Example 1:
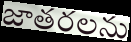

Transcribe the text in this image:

జాతరలను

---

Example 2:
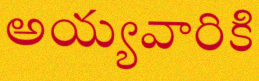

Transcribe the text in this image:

అయ్యవారికి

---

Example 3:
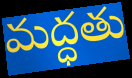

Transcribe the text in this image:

మద్ధతు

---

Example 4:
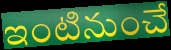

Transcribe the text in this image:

ఇంటినుంచే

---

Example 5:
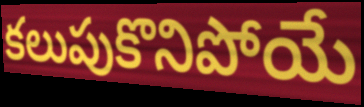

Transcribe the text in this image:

కలుపుకొనిపోయే